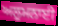
ਅਲੂਮਨਾਈ